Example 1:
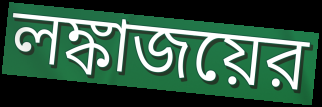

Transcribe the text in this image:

লঙ্কাজয়ের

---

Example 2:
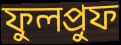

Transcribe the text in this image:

ফুলপ্রুফ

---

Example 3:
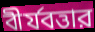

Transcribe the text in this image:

বীর্যবত্তার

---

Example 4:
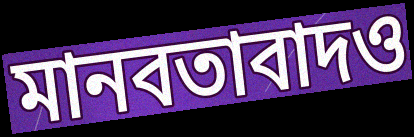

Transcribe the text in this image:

মানবতাবাদও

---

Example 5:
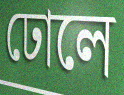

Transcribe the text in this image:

ঢোলে